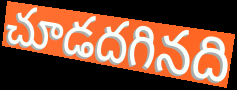
చూడదగినది